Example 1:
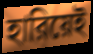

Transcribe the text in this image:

হারিয়েই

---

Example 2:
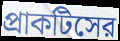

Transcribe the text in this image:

প্রাকটিসের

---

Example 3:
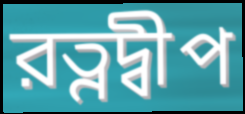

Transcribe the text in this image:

রত্নদ্বীপ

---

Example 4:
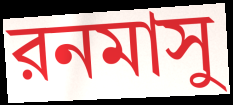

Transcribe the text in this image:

রনমাসু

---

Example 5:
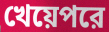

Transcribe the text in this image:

খেয়েপরে